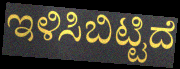
ಇಳಿಸಿಬಿಟ್ಟಿದೆ